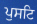
ਪੁਸਟਿ